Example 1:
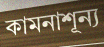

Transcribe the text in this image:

কামনাশূন্য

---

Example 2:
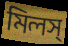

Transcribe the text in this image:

মিলস্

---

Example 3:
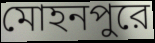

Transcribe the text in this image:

মোহনপুরে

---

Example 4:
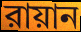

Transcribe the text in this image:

রায়ান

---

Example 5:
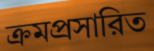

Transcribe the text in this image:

ক্রমপ্রসারিত